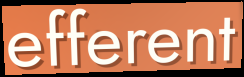
efferent